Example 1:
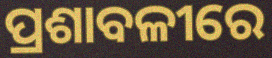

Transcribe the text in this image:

ପ୍ରଶାବଳୀରେ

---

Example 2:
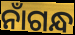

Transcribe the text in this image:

ନାଁଗନ୍ଧ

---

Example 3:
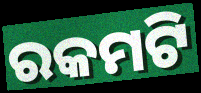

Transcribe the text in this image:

ରକମଟି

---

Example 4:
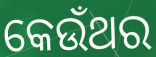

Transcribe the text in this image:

କେଉଁଥର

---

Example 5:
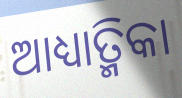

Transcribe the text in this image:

ଆଧ୍ୟାତ୍ମିକା